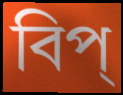
বিপ্